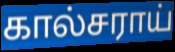
கால்சராய்